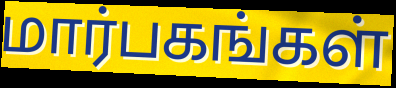
மார்பகங்கள்